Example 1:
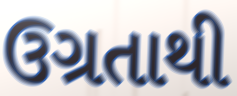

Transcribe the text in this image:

ઉગ્રતાથી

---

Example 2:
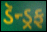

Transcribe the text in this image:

ડૅન્ડ્રફ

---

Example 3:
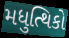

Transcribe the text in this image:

મધુત્થિકો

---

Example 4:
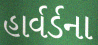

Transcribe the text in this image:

હાર્વર્ડના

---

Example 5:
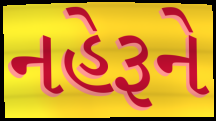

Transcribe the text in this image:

નહેરૂને